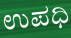
ಉಪಧಿ